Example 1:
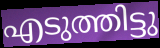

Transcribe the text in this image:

എടുത്തിട്ടു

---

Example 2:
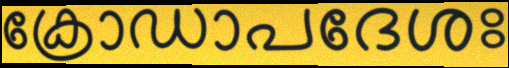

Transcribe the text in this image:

ക്രോഡാപദേശഃ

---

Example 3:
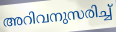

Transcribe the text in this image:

അറിവനുസരിച്ച്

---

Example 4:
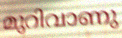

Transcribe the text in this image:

മുറിവാണു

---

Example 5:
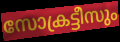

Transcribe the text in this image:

സോക്രട്ടീസും